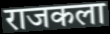
राजकला